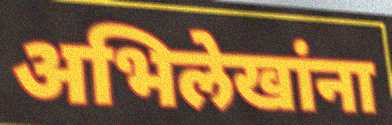
अभिलेखांना